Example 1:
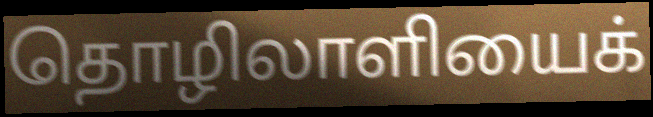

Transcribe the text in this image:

தொழிலாளியைக்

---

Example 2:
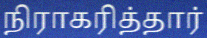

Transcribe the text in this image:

நிராகரித்தார்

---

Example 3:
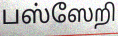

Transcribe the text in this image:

பஸ்ஸேறி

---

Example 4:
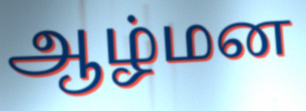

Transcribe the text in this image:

ஆழ்மன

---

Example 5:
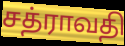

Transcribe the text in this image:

சத்ராவதி